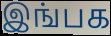
இங்பக